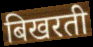
बिखरती